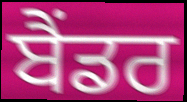
ਬੈਂਡਰ